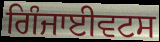
ਗਿੰਜਾਈਵਟਸ